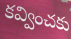
కవ్వించకు